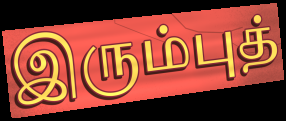
இரும்புத்